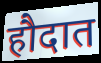
हौदात